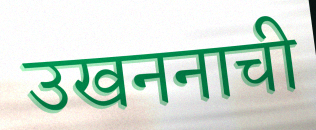
उखननाची